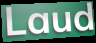
Laud